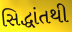
સિદ્ધાંતથી